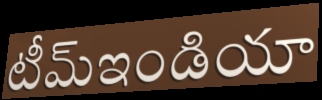
టీమ్ఇండియా